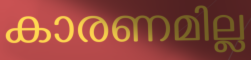
കാരണമില്ല